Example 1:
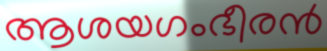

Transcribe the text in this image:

ആശയഗംഭീരൻ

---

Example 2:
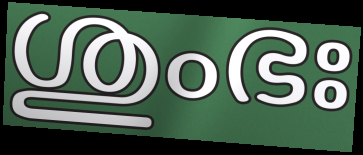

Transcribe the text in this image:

ശുംഭഃ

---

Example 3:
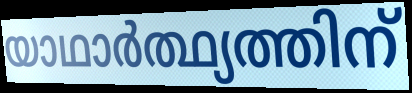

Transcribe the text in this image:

യാഥാർത്ഥ്യത്തിന്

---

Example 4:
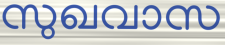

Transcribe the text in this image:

സുഖവാസ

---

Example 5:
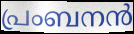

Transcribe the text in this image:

പ്രംബനൻ